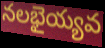
నలభైయ్యవ